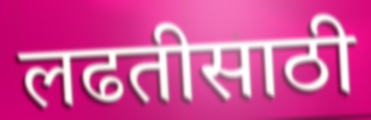
लढतीसाठी